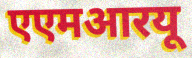
एएमआरयू